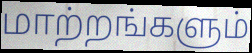
மாற்றங்களும்